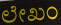
ಲೇಖಂ